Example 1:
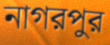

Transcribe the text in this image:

নাগরপুর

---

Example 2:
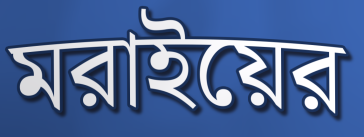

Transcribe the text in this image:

মরাইয়ের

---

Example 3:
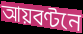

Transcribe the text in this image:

আয়বণ্টনে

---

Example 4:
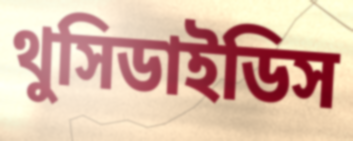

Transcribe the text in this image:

থুসিডাইডিস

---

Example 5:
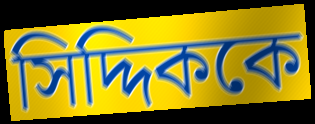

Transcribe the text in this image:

সিদ্দিককে